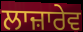
ਲਾਜ਼ਾਰੇਵ